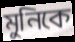
মুনিকে